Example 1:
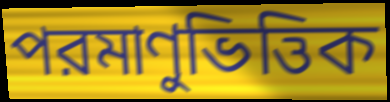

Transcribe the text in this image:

পরমাণুভিত্তিক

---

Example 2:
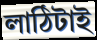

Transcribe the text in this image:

লাঠিটাই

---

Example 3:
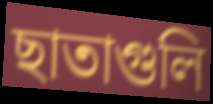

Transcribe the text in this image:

ছাতাগুলি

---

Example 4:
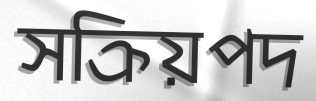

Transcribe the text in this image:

সক্রিয়পদ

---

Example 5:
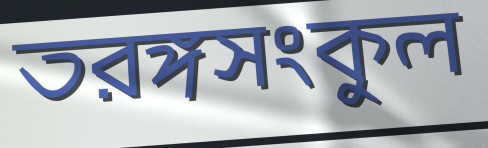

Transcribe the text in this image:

তরঙ্গসংকুল